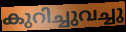
കുറിച്ചുവച്ചു